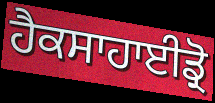
ਹੈਕਸਾਹਾਈਡ੍ਰੋ